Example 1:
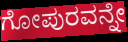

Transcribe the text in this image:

ಗೋಪುರವನ್ನೇ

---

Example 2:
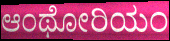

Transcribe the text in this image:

ಆಂಥೋರಿಯಂ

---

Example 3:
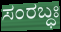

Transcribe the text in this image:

ಸಂರಬ್ಧಃ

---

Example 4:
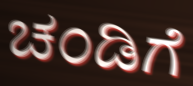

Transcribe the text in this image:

ಚಂಡಿಗೆ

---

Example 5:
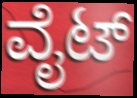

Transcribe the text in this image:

ವೈಟ್